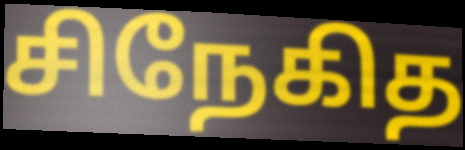
சிநேகித